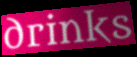
drinks